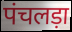
पंचलड़ा